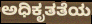
ಅಧಿಕೃತತೆಯ